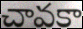
చావకా